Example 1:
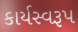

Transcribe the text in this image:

કાર્યસ્વરૂપ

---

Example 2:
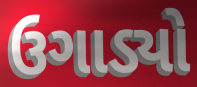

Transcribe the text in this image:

ઉગાડ્યો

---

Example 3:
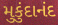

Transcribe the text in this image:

મુકુંદાનંદ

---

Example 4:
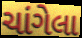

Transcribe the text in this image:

ચાંગેલા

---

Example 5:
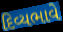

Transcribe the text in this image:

દિવ્યભાવે